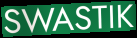
SWASTIK